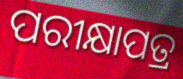
ପରୀକ୍ଷାପତ୍ର